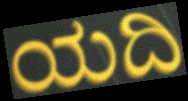
ಯದಿ